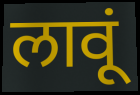
लावूं